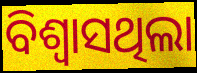
ବିଶ୍ୱାସଥିଲା